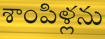
శాంపిళ్లను